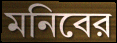
মনিবের